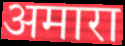
अमारा